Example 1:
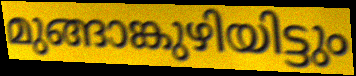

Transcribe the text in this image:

മുങ്ങാങ്കുഴിയിട്ടും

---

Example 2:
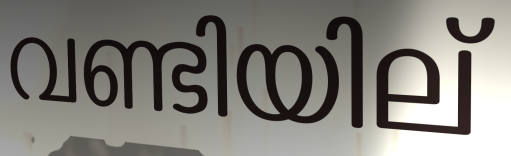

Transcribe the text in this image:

വണ്ടിയില്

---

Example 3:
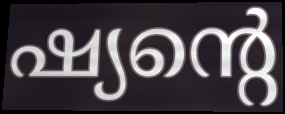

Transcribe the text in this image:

ഷ്യന്റെ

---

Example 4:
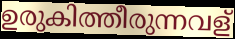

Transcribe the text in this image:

ഉരുകിത്തീരുന്നവള്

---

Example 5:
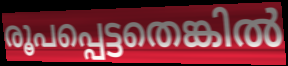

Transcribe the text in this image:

രൂപപ്പെട്ടതെങ്കിൽ